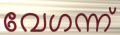
വേഗന്ന്